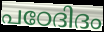
പഠേദിദം